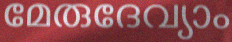
മേരുദേവ്യാം